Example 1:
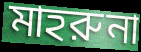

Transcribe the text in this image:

মাহরুনা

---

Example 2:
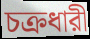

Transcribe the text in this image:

চক্রধারী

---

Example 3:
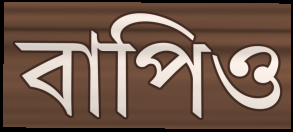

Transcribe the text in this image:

বাপিও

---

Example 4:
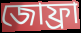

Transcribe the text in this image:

জোফ্রা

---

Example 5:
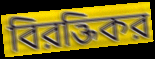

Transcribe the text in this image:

বিরক্তিকর